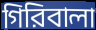
গিরিবালা